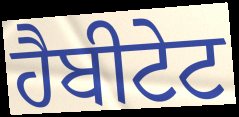
ਹੈਬੀਟੇਟ